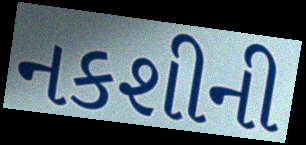
નકશીની